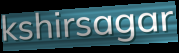
kshirsagar